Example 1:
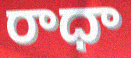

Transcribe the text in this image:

రాధా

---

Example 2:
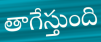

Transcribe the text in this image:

తాగేస్తుంది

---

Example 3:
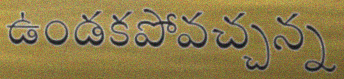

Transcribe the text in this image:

ఉండకపోవచ్చన్న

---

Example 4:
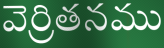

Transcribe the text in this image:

వెర్రితనము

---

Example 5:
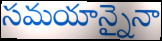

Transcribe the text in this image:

సమయాన్నైనా